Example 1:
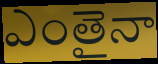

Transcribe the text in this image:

ఎంతైనా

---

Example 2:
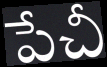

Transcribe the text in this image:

పేచీ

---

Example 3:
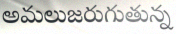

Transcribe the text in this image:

అమలుజరుగుతున్న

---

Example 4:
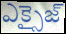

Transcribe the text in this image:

ఎక్సైజ్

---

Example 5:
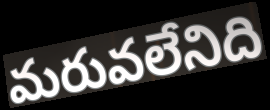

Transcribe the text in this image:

మరువలేనిది